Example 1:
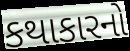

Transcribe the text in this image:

કથાકારનો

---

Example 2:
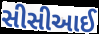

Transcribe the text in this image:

સીસીઆઈ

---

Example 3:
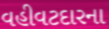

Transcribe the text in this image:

વહીવટદારના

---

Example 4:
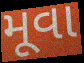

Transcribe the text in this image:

મૂવા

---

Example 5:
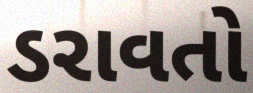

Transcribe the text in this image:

ડરાવતો